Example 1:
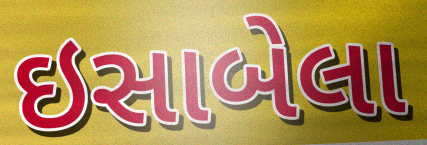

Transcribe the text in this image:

ઇસાબેલા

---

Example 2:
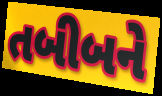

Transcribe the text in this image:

તબીબને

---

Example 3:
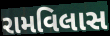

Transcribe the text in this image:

રામવિલાસ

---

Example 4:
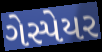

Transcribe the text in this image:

ગેસ્પેયર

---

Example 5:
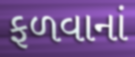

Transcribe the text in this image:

ફળવાનાં